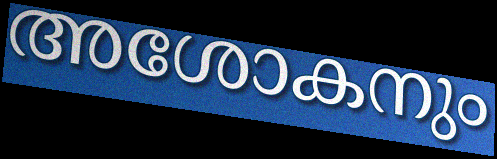
അശോകനും